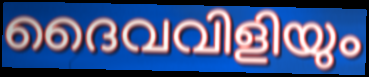
ദൈവവിളിയും